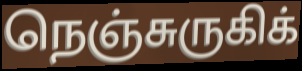
நெஞ்சுருகிக்